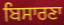
ਬਿਸਾਰਣਾ